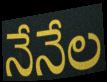
నేనేల